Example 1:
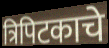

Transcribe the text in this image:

त्रिपिटकाचे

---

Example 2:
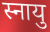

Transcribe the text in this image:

स्नायु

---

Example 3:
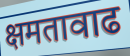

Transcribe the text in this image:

क्षमतावाढ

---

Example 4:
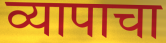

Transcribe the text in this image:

व्यापाचा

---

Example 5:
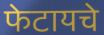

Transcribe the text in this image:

फेटायचे